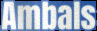
Ambals